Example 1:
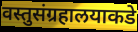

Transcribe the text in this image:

वस्तुसंग्रहालयाकडे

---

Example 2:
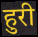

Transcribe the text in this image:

हुरी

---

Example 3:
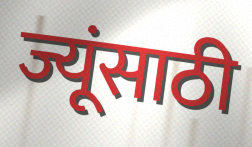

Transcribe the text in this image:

ज्यूंसाठी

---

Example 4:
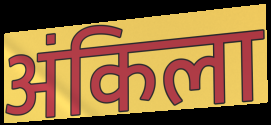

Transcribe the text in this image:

अंकिला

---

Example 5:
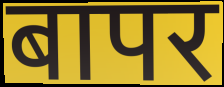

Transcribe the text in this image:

बापर